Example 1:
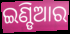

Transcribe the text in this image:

ଇଣ୍ଡିଆର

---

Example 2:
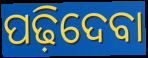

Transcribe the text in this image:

ପଢ଼ିଦେବା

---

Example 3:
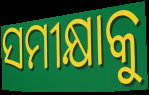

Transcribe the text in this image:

ସମୀକ୍ଷାକୁ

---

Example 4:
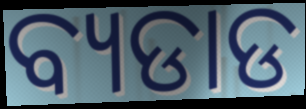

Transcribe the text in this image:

ବ୍ୟଡାଡ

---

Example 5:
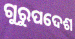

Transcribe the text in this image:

ଗୁରୁପଦେଶ